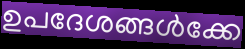
ഉപദേശങ്ങൾക്കേ